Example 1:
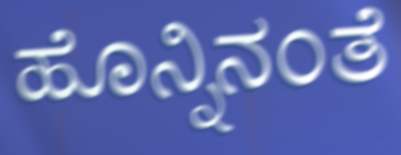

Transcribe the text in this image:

ಹೊನ್ನಿನಂತೆ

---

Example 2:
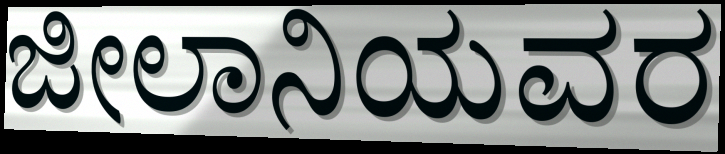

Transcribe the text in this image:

ಜೀಲಾನಿಯವರ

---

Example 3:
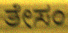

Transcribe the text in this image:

ತೇಸಂ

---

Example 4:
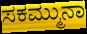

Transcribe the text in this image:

ಸಕಮ್ಮುನಾ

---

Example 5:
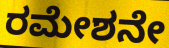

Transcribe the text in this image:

ರಮೇಶನೇ